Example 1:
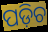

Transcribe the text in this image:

ପଡ଼ିଚ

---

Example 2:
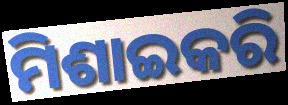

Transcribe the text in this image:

ମିଶାଇକରି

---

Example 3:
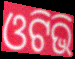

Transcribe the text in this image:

ଓଟିଭି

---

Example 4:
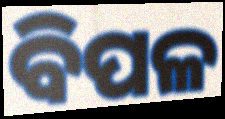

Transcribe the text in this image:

ବିପଳ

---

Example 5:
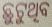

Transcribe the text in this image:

ଛୁଟୁଥିବ